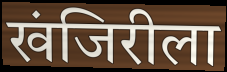
खंजिरीला